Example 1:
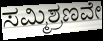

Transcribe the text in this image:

ಸಮ್ಮಿಶ್ರಣವೇ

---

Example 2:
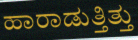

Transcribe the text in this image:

ಹಾರಾಡುತ್ತಿತ್ತು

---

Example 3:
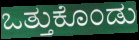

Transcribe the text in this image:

ಒತ್ತುಕೊಂಡು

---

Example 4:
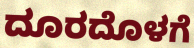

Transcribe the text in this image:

ದೂರದೊಳಗೆ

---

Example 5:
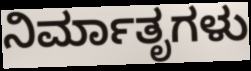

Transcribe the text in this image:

ನಿರ್ಮಾತೃಗಳು